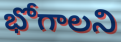
భోగాలని